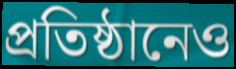
প্রতিষ্ঠানেও